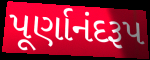
પૂર્ણાનંદરૂપ